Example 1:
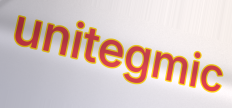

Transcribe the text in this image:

unitegmic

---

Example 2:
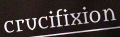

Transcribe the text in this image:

crucifixion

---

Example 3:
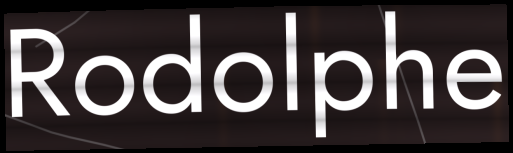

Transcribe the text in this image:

Rodolphe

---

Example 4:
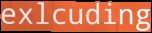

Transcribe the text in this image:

exlcuding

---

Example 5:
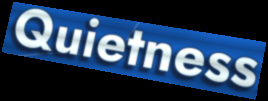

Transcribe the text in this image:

Quietness